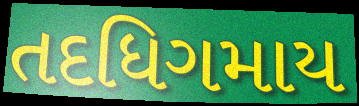
તદધિગમાય